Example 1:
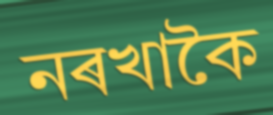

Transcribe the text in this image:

নৰখাকৈ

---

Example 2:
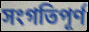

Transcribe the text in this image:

সংগতিপূৰ্ণ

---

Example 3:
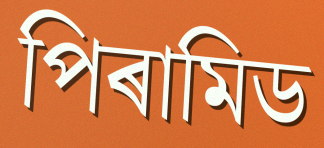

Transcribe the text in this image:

পিৰামিড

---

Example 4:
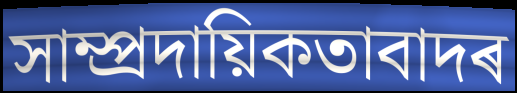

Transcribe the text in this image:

সাম্প্ৰদায়িকতাবাদৰ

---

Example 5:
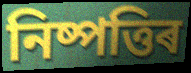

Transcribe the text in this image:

নিষ্পত্তিৰ